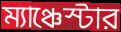
ম্যাঞ্চেস্টার